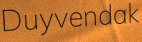
Duyvendak